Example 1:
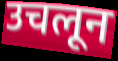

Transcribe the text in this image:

उचलून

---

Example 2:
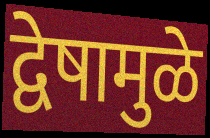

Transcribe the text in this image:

द्वेषामुळे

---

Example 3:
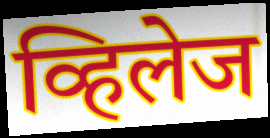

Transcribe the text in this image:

व्हिलेज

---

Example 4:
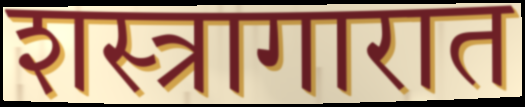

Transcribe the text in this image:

शस्त्रागारात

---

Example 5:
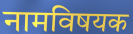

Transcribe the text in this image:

नामविषयक